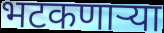
भटकणार्‍या